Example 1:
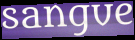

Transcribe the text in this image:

sangue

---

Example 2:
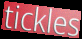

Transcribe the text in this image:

tickles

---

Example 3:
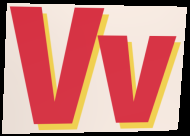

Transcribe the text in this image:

Vv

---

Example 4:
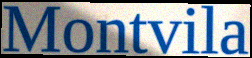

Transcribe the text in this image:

Montvila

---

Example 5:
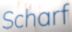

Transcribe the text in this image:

Scharf